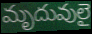
మృదువులై